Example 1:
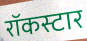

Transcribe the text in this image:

रॉकस्टार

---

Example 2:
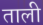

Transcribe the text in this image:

ताली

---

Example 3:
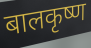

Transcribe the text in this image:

बालकृष्ण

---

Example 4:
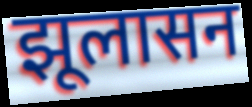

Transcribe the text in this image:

झूलासन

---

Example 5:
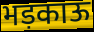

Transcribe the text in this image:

भड़काऊ